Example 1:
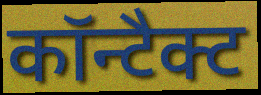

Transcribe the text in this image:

कॉन्टैक्ट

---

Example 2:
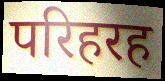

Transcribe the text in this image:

परिहरह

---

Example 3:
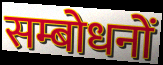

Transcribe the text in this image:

सम्बोधनों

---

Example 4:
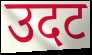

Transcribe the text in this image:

उदट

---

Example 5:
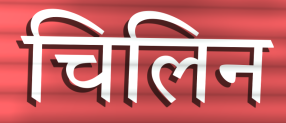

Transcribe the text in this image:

चिलिन